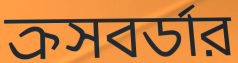
ক্রসবর্ডার